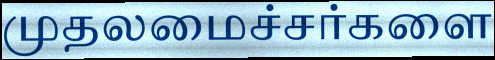
முதலமைச்சர்களை